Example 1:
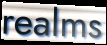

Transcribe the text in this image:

realms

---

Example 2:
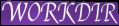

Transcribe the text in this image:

WORKDIR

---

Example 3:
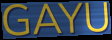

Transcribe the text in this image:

GAYU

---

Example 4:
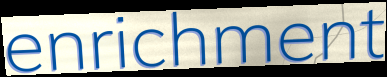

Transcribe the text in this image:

enrichment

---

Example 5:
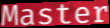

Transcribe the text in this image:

Master